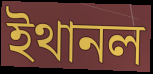
ইথানল